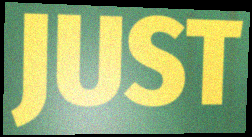
JUST